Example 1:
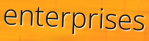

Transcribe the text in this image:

enterprises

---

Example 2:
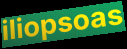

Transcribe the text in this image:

iliopsoas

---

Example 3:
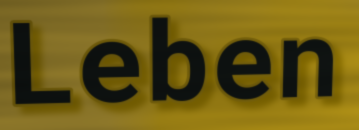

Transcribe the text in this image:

Leben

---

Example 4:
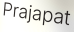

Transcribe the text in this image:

Prajapat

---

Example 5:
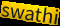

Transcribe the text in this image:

swathi